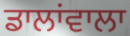
ਡਾਲਾਂਵਾਲਾ